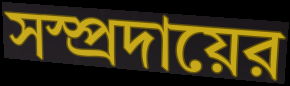
সস্প্রদায়ের